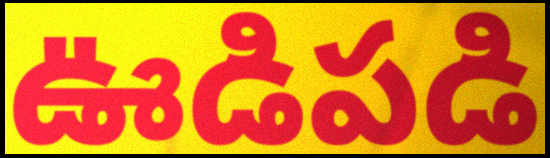
ఊడిపడి